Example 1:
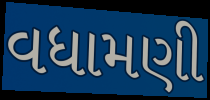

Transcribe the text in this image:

વધામણી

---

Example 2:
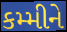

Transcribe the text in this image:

કમ્મીને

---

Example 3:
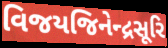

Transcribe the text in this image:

વિજયજિનેન્દ્રસૂરિ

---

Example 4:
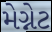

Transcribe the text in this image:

મેગ્નેટ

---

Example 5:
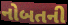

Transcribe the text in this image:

નોબતની